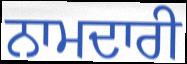
ਨਾਮਦਾਰੀ